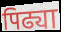
पिढ्या